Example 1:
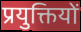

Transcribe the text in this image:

प्रयुक्तियों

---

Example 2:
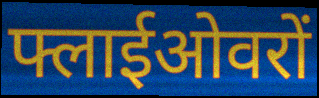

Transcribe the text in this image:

फ्लाईओवरों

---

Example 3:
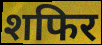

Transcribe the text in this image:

शफिर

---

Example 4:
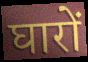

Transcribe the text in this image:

घारों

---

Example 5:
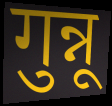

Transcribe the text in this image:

गुन्नू